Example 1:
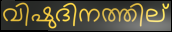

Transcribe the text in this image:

വിഷുദിനത്തില്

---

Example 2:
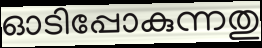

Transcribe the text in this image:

ഓടിപ്പോകുന്നതു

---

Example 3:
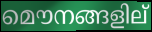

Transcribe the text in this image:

മൌനങ്ങളില്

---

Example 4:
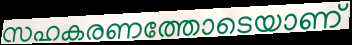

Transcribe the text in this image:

സഹകരണത്തോടെയാണ്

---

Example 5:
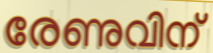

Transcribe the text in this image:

രേണുവിന്